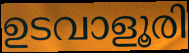
ഉടവാളൂരി